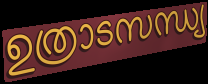
ഉത്രാടസന്ധ്യ